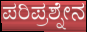
ಪರಿಪ್ರಶ್ನೇನ